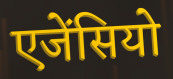
एजेंसियो